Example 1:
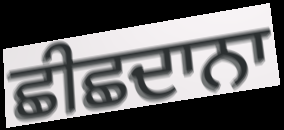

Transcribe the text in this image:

ਛੀਛਦਾਨਾ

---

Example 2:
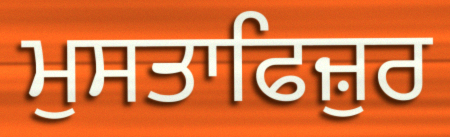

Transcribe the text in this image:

ਮੁਸਤਾਫਿਜ਼ੁਰ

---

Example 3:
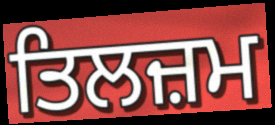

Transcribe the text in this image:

ਤਿਲਜ਼ਮ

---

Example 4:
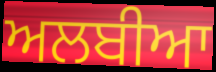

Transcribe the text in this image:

ਅਲਬੀਆ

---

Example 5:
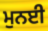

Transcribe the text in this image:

ਮੁਨਈ